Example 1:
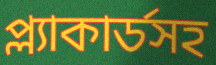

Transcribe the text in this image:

প্ল্যাকার্ডসহ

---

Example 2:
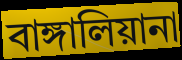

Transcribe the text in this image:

বাঙ্গালিয়ানা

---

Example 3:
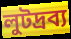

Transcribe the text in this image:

লুটদ্রব্য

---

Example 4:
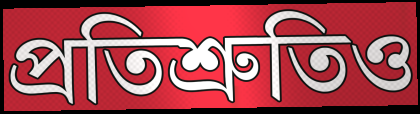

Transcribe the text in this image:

প্রতিশ্রুতিও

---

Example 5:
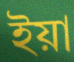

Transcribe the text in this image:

ইয়া